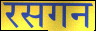
रसगन